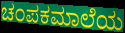
ಚಂಪಕಮಾಲೆಯ